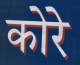
कोरे